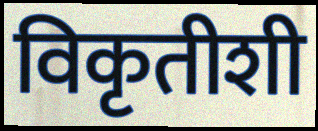
विकृतीशी